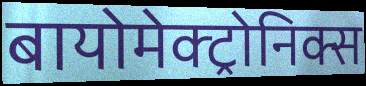
बायोमेक्ट्रोनिक्स